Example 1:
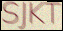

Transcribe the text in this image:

SJKT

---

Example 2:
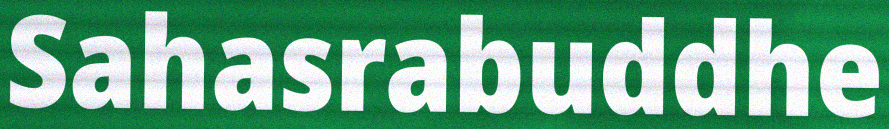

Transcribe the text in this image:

Sahasrabuddhe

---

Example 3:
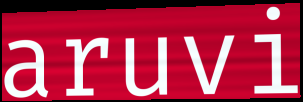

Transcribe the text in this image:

aruvi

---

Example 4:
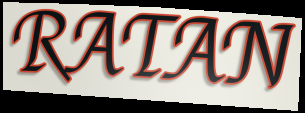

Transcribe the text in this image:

RATAN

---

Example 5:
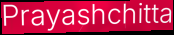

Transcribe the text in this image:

Prayashchitta